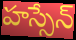
హస్సేన్